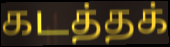
கடத்தக்